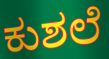
ಕುಶಲೆ